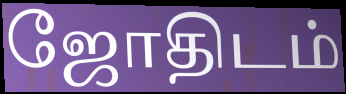
ஜோதிடம்